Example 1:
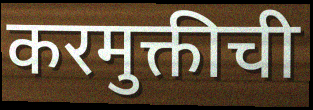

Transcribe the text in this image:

करमुक्तीची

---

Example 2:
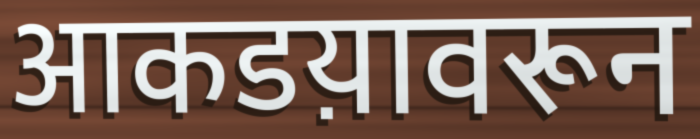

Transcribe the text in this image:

आकडय़ावरून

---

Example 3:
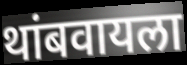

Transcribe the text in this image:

थांबवायला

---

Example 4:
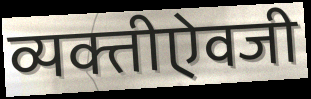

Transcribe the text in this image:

व्यक्तीऐवजी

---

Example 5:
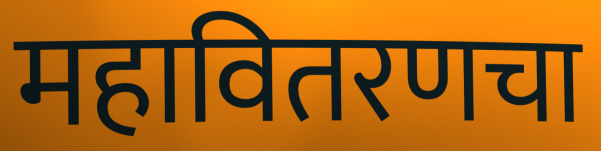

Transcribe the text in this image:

महावितरणचा